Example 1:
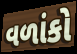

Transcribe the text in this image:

વળાંકો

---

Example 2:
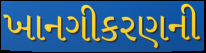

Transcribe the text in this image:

ખાનગીકરણની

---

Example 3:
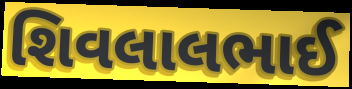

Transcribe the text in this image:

શિવલાલભાઈ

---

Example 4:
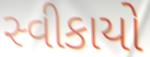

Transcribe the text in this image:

સ્વીકાયો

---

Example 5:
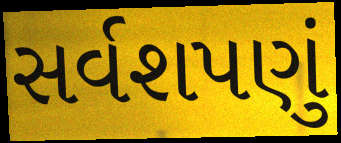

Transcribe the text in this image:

સર્વશપણું